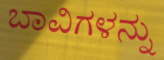
ಬಾವಿಗಳನ್ನು